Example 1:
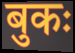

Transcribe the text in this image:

बुकः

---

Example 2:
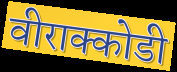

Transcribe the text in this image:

वीराक्कोडी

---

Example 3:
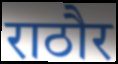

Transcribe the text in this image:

राठौर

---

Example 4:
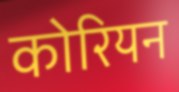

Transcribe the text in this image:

कोरियन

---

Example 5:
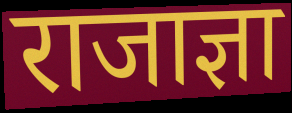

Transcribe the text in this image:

राजाज्ञा